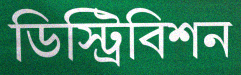
ডিস্ট্রিবিশন